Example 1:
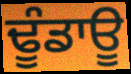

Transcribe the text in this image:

ਢੂੰਡਾਊ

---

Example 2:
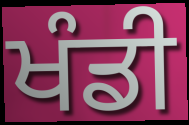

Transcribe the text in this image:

ਖੰਡੀ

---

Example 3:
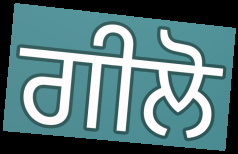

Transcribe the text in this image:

ਗੀਲੋ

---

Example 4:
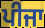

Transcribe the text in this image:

ਪੀਜਾ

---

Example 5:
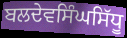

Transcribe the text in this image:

ਬਲਦੇਵਸਿੰਘਸਿੱਧੂ